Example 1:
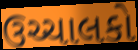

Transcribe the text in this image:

ઉચ્ચાલકો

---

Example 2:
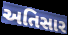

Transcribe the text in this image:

અતિસાર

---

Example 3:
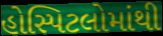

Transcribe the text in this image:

હોસ્પિટલોમાંથી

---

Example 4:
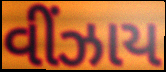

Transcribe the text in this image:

વીંઝાય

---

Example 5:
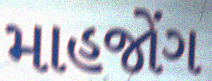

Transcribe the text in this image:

માહજોંગ